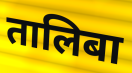
तालिबा